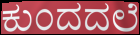
ಕುಂದದಲೆ